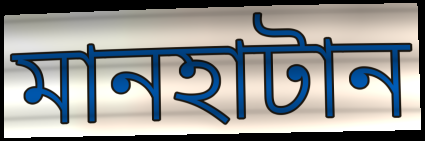
মানহাটান